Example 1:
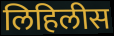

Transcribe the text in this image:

लिहिलीस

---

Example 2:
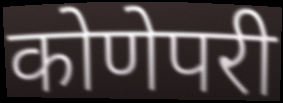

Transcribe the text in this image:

कोणेपरी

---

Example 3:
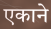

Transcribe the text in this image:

एकाने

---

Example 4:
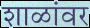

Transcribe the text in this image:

शाळांवर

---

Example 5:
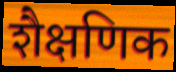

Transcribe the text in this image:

शैक्षणिक